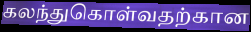
கலந்துகொள்வதற்கான